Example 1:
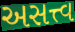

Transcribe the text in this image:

અસત્ત્વ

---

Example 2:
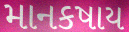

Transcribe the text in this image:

માનકષાય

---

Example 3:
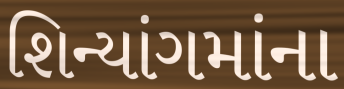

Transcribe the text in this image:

શિન્યાંગમાંના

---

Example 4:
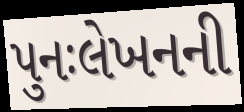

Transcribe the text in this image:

પુનઃલેખનની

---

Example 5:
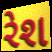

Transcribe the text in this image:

રેશ